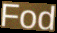
Fod